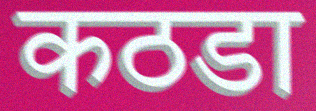
कठडा